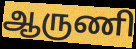
ஆருணி